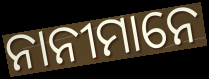
ନାନୀମାନେ